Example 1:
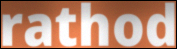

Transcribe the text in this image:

rathod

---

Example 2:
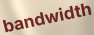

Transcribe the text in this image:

bandwidth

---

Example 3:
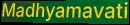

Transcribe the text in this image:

Madhyamavati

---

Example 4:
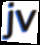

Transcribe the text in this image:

jv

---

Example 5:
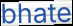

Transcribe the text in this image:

bhate